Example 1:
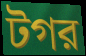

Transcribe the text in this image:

টগর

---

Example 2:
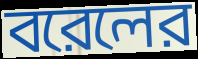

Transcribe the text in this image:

বরেলের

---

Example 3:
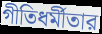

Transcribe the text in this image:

গীতিধর্মীতার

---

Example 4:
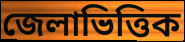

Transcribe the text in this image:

জেলাভিত্তিক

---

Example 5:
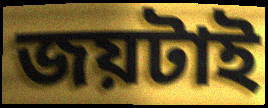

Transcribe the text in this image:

জয়টাই